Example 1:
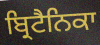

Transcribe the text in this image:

ਬ੍ਰਿਟੈਨਿਕਾ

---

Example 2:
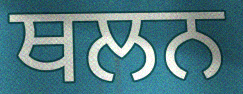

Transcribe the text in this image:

ਥਲਨ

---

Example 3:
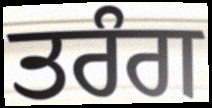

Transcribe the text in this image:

ਤਰੰਗ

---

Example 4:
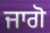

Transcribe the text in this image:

ਜਾਗੋ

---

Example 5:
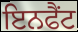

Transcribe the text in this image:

ਇਨਫੈਂਟ